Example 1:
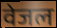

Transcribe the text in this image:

वेजल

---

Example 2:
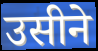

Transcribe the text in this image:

उसीने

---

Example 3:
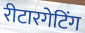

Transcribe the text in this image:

रीटारगेटिंग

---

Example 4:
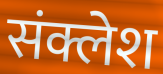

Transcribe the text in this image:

संक्लेश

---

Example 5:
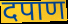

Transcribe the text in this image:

दपाण